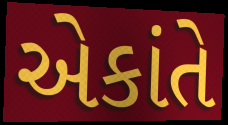
એકાંતે